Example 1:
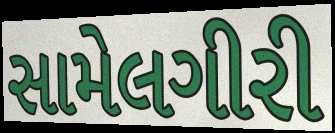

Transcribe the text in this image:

સામેલગીરી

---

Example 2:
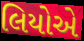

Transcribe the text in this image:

લિયોએ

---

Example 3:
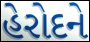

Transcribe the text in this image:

હેરોદને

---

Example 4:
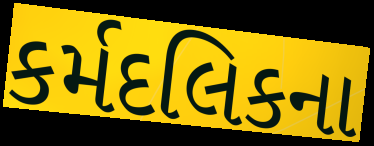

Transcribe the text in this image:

કર્મદલિકના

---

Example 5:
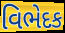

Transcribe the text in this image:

વિભેદક